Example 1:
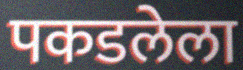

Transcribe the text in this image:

पकडलेला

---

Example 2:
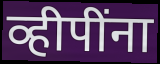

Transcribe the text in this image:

व्हीपींना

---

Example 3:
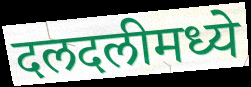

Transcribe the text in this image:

दलदलीमध्ये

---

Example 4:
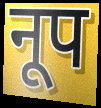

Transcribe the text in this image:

नूप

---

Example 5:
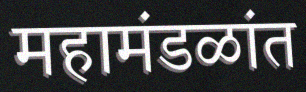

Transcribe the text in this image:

महामंडळांत